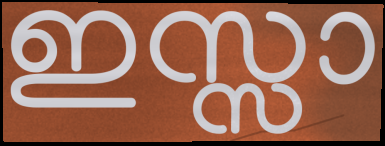
ഇസ്സാ